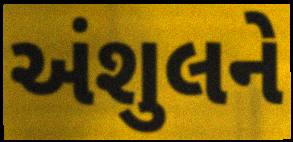
અંશુલને